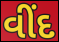
વીંદ